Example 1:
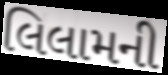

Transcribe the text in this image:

લિલામની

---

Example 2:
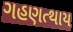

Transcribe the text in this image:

ગહણત્થાય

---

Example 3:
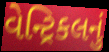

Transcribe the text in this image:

વેન્ટ્રિકલનું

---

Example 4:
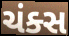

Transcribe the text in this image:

ચંક્સ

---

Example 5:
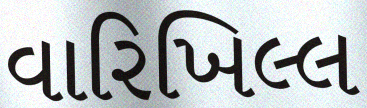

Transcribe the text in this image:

વારિખિલ્લ